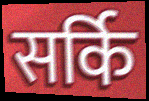
सर्कि